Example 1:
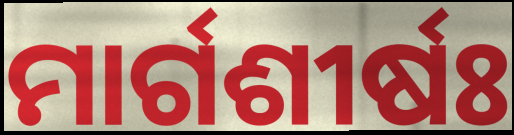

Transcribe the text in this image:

ମାର୍ଗଶୀର୍ଷଃ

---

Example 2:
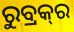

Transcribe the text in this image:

ରୁବ୍ରକ୍‍ର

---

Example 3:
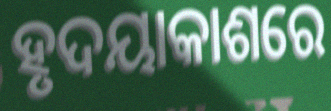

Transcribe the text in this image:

ହୃଦୟାକାଶରେ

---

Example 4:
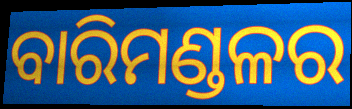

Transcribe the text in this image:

ବାରିମଣ୍ଡଳର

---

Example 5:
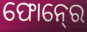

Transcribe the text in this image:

ଫୋନ୍‍ରେ